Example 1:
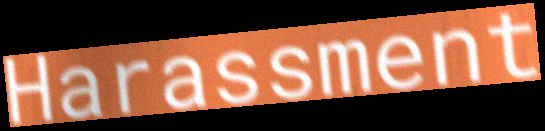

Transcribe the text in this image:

Harassment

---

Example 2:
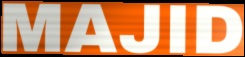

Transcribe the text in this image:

MAJID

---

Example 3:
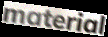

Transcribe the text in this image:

material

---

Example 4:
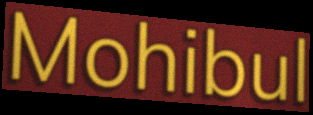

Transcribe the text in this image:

Mohibul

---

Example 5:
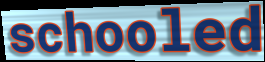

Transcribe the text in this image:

schooled